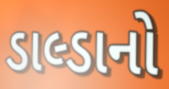
ડાલ્ડાનો